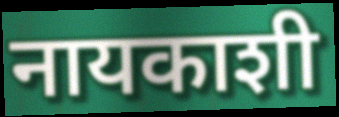
नायकाशी